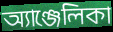
অ্যাঞ্জেলিকা